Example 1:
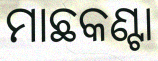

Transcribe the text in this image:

ମାଛକଣ୍ଟା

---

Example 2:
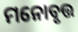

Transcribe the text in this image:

ମନୋବୃତ୍ତ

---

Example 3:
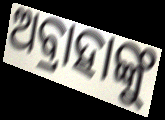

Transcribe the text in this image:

ଅବ୍ରାହାଙ୍କୁ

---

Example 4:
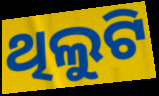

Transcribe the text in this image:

ଥିଲୁଟି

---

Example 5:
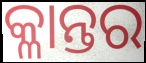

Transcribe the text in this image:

କ୍ଳାନ୍ତର